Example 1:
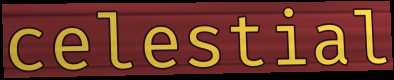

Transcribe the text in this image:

celestial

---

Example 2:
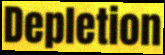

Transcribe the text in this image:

Depletion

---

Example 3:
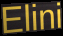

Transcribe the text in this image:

Elini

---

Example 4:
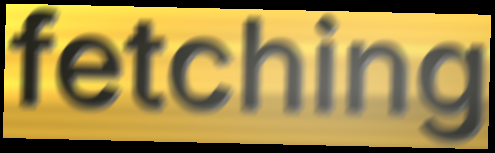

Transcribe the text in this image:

fetching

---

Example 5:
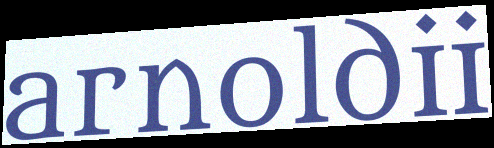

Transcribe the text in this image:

arnoldii